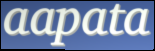
aapata